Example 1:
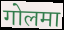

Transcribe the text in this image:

गोलमा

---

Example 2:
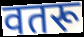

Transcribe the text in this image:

वतरू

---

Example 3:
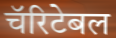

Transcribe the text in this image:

चॅरिटेबल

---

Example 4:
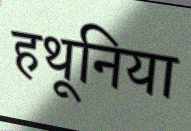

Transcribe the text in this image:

हथूनिया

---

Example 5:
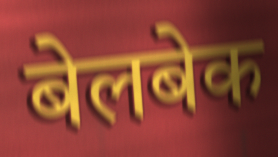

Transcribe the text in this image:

बेलबेक